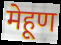
मेहूण